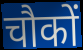
चौकों